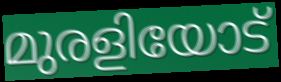
മുരളിയോട്